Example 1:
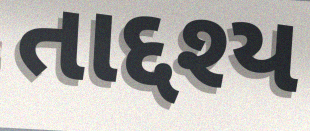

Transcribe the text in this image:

તાદ્દશ્ય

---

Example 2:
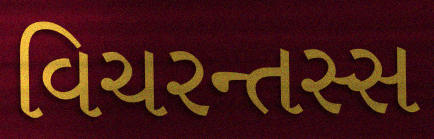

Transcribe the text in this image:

વિચરન્તસ્સ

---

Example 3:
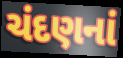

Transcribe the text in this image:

ચંદણનાં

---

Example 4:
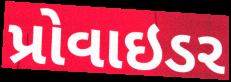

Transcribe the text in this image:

પ્રોવાઇડર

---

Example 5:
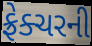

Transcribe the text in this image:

ફ્રેક્ચરની